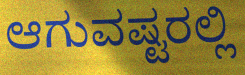
ಆಗುವಷ್ಟರಲ್ಲಿ